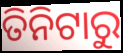
ତିନିଟାରୁ